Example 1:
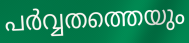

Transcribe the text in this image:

പർവ്വതത്തെയും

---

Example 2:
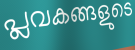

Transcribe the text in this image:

പ്ലവകങ്ങളുടെ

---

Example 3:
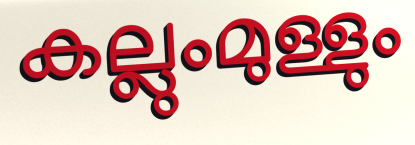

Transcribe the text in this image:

കല്ലുംമുള്ളും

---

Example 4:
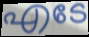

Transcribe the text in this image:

എടേ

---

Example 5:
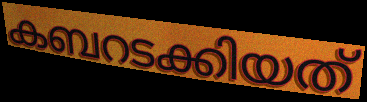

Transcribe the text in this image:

കബറടക്കിയത്